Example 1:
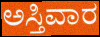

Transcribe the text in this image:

ಅಸ್ತಿವಾರ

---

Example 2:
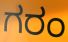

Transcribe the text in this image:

ಗರಂ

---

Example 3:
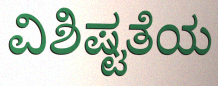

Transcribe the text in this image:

ವಿಶಿಷ್ಟತೆಯ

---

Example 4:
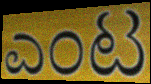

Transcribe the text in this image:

ಎಂಟ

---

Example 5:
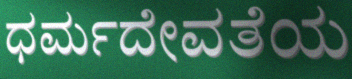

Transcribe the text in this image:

ಧರ್ಮದೇವತೆಯ